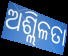
ଅଶ୍ଲିଳତା